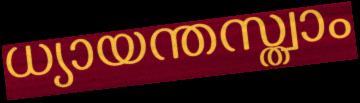
ധ്യായന്തസ്ത്വാം